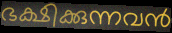
ഭക്ഷിക്കുന്നവൻ